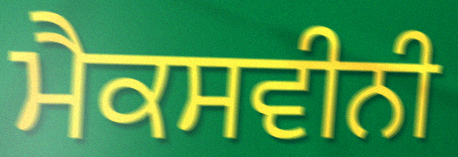
ਮੈਕਸਵੀਨੀ